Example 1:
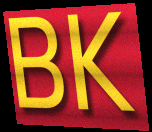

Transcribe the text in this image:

BK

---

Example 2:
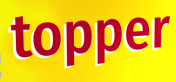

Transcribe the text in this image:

topper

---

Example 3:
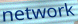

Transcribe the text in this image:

network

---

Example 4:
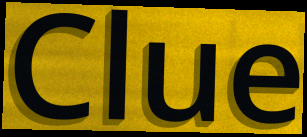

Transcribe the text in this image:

Clue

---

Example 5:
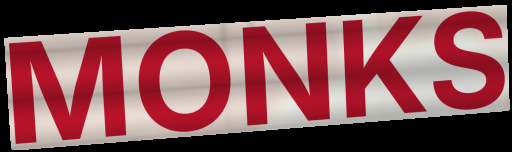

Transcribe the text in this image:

MONKS